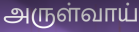
அருள்வாய்